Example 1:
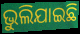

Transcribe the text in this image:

ଭୁଲିଯାଇଛି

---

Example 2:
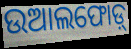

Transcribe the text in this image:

ଉଆଲଫୋଡ଼୍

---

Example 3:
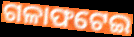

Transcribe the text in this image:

ଗଳାଫଟେଇ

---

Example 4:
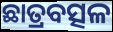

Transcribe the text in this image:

ଛାତ୍ରବତ୍ସଳ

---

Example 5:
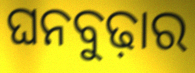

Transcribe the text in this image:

ଘନବୁଢ଼ାର